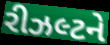
રીઝલ્ટને